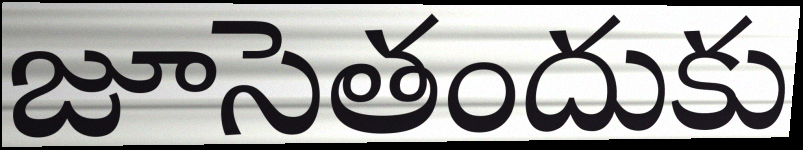
జూసెతందుకు